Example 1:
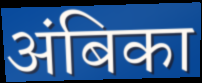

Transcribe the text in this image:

अंबिका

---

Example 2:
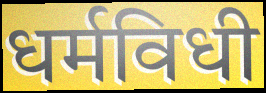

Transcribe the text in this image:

धर्मविधी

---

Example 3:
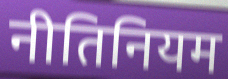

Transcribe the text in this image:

नीतिनियम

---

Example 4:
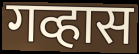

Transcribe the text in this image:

गव्हास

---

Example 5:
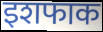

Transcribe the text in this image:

इशफाक